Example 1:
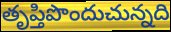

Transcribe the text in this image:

తృప్తిపొందుచున్నది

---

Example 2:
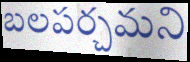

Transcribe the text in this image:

బలపర్చమని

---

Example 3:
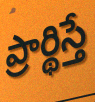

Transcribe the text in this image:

ప్రార్థిస్తే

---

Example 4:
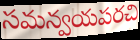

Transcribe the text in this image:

సమన్వయపరచి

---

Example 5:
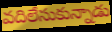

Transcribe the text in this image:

వదిలేసుకున్నాడు